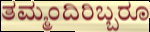
ತಮ್ಮಂದಿರಿಬ್ಬರೂ